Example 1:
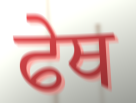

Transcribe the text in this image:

ਫੇਥ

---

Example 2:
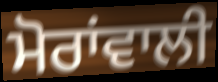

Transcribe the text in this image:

ਮੋਰਾਂਵਾਲੀ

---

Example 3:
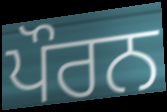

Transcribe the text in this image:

ਪੌਰਨ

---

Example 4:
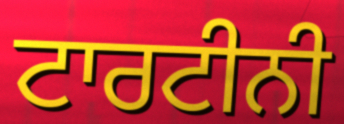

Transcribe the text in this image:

ਟਾਰਟੀਨੀ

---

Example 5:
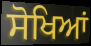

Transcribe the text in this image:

ਸੋਖਿਆਂ